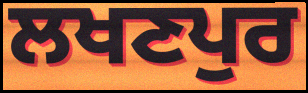
ਲਖਣਪੁਰ